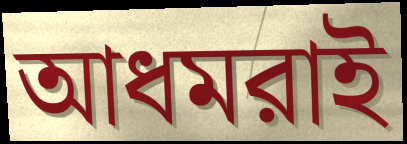
আধমরাই